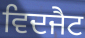
ਵਿਦਜੈਟ